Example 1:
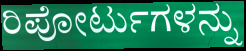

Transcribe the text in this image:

ರಿಪೋರ್ಟುಗಳನ್ನು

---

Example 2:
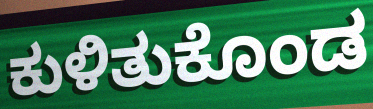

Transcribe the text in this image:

ಕುಳಿತುಕೊಂಡ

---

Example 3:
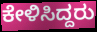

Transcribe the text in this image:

ಕೇಳಿಸಿದ್ದರು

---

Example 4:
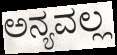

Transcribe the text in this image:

ಅನ್ಯವಲ್ಲ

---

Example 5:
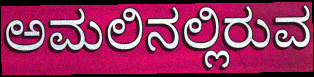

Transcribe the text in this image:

ಅಮಲಿನಲ್ಲಿರುವ